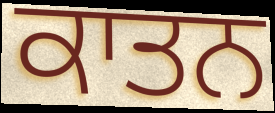
ਕਾਤਨ